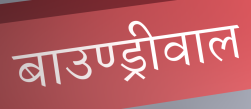
बाउण्ड्रीवाल